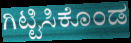
ಗಿಟ್ಟಿಸಿಕೊಂಡ